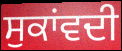
ਸੁਕਾਂਵਦੀ